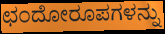
ಛಂದೋರೂಪಗಳನ್ನು